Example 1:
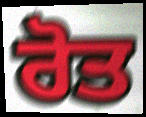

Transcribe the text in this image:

ਰੋਤ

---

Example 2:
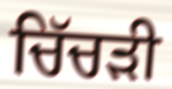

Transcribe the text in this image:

ਚਿੱਚੜੀ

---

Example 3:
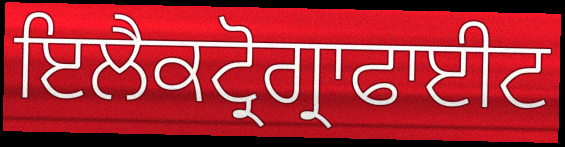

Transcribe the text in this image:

ਇਲੈਕਟ੍ਰੋਗ੍ਰਾਫਾਈਟ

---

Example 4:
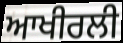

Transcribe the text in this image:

ਆਖੀਰਲੀ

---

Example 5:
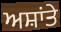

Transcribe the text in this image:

ਅਸ਼ਾਂਤੇ